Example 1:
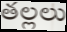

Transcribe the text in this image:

తల్లలు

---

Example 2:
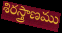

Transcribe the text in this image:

శిరస్త్రాణము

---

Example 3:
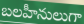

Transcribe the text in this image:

బలహీనులుగా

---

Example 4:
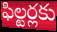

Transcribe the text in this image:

ఫిల్టర్లకు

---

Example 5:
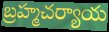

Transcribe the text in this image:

బ్రహ్మచర్యాయ